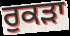
ਰੁਕੜਾ